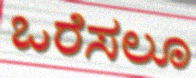
ಒರೆಸಲೂ